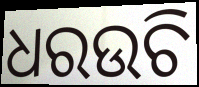
ଧରଉଚି